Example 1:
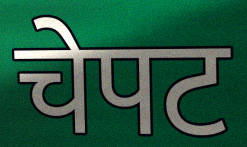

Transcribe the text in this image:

चेपट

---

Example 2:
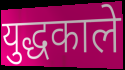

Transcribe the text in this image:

युद्धकाले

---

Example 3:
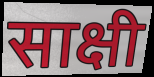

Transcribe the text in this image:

साक्षी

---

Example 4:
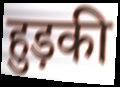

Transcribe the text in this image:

हुड़की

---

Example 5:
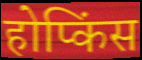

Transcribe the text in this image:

होप्किंस